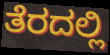
ತೆರದಲ್ಲಿ